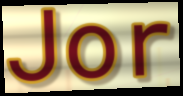
Jor